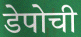
डेपोची